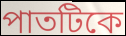
পাতটিকে